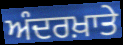
ਅੰਦਰਖ਼ਾਤੇ